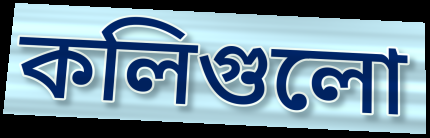
কলিগুলো